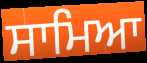
ਸਾਮਿਆ